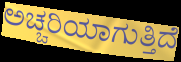
ಅಚ್ಚರಿಯಾಗುತ್ತಿದೆ